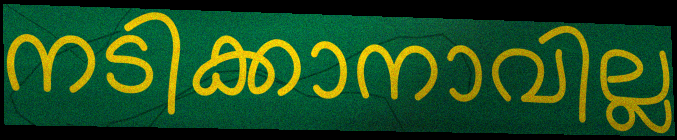
നടിക്കാനാവില്ല